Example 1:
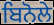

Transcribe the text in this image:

ਬਿਨੋਲੇ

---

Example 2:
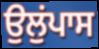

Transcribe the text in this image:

ਉਲੁਂਪਾਸ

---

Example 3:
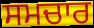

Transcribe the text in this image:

ਸਮਚਾਰ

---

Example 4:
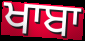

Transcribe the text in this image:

ਖਾਬਾ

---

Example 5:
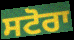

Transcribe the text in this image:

ਸਟੋਰਾ